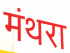
मंथरा